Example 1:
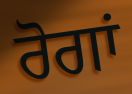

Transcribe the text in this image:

ਰੋਗਾਂ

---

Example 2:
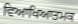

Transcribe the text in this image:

ਵਿਆਖਿਆਤਮਕ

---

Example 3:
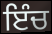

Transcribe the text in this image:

ਇੰਚ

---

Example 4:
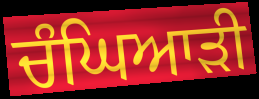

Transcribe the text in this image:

ਚੰਘਿਆੜੀ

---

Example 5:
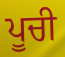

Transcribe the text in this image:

ਪੂਚੀ